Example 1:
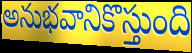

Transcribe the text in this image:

అనుభవానికొస్తుంది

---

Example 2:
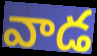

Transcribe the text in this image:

వాడ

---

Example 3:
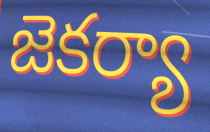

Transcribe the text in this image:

జెకర్యా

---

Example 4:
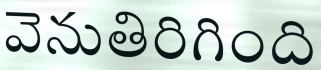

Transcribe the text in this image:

వెనుతిరిగింది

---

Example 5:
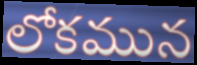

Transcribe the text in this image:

లోకమున